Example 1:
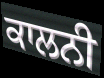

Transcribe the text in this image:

ਕਾਲਨੀ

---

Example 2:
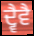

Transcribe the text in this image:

ਦ੍ਵੈਵੈ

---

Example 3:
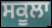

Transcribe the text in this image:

ਸਕੂਲਾ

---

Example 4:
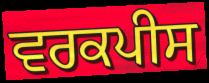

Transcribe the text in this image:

ਵਰਕਪੀਸ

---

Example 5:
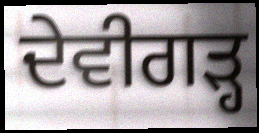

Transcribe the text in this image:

ਦੇਵੀਗੜ੍ਹ